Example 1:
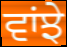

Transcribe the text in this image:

ਵਾਂਝੇ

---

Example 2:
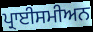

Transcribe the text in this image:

ਪ੍ਰਾਈਸਮੀਅਨ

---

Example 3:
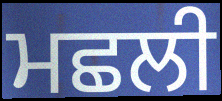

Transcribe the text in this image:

ਮਛਲੀ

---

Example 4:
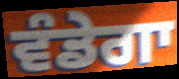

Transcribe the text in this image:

ਵੰਡੇਗਾ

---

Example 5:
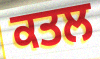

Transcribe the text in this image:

ਕਤਲ